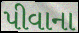
પીવાના